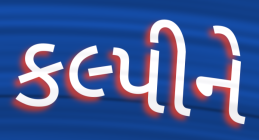
કલ્પીને